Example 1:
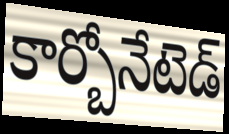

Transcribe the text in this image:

కార్బోనేటెడ్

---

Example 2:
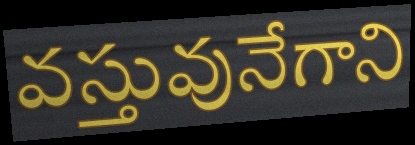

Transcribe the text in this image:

వస్తువునేగాని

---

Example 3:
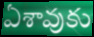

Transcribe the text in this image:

ఏశావుకు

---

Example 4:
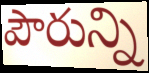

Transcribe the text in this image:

పౌరున్ని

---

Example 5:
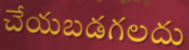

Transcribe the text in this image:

చేయబడగలదు